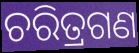
ଚରିତ୍ରଗଣ